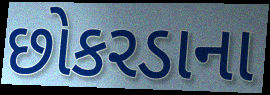
છોકરડાના